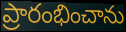
ప్రారంభించాను